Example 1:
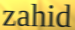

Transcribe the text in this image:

zahid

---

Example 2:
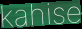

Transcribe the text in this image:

kahise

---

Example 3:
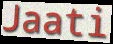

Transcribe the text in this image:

Jaati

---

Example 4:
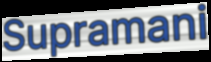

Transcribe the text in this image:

Supramani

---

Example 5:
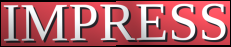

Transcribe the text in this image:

IMPRESS